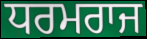
ਧਰਮਰਾਜ